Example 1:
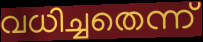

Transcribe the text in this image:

വധിച്ചതെന്ന്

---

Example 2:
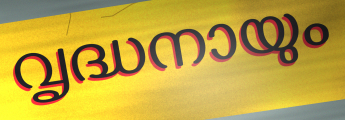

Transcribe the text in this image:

വൃദ്ധനായും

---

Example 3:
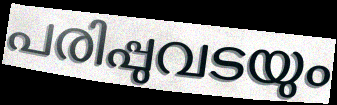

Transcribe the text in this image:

പരിപ്പുവടയും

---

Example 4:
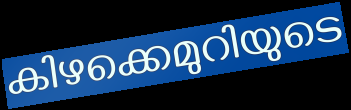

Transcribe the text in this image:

കിഴക്കെമുറിയുടെ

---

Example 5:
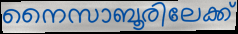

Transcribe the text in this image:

നൈസാബൂരിലേക്ക്